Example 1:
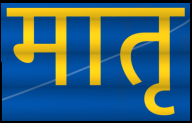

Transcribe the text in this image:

मातृ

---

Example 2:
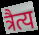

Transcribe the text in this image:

त्रैत्य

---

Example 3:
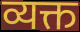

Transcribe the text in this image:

व्यक्त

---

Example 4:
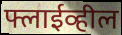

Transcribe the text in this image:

फ्लाईव्हील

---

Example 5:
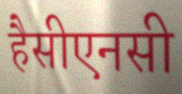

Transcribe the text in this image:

हैसीएनसी